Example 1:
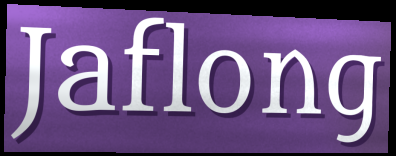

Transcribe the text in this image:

Jaflong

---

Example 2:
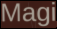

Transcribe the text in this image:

Magi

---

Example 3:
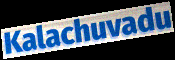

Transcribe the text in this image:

Kalachuvadu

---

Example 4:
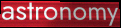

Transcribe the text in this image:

astronomy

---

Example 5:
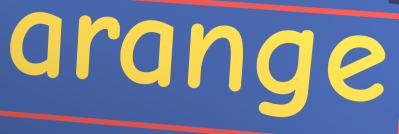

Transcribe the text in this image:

arange